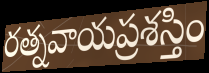
రత్నవాయప్రశస్తిం